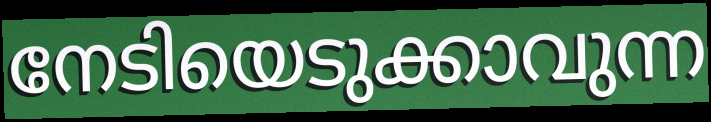
നേടിയെടുക്കാവുന്ന